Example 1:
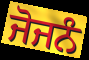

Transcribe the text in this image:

ਜੋਜਨੰ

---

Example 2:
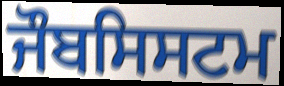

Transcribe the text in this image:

ਜੌਬਸਿਸਟਮ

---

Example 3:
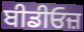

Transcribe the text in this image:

ਬੀਡੀਓਜ਼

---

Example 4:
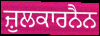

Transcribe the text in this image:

ਜ਼ੁਲਕਾਰਨੈਨ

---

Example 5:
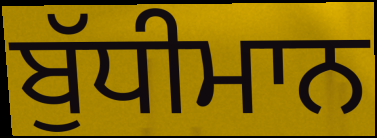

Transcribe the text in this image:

ਬੁੱਧੀਮਾਨ